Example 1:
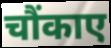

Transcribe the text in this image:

चौंकाए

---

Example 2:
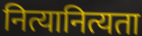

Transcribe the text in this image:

नित्यानित्यता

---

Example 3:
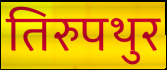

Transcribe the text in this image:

तिरुपथुर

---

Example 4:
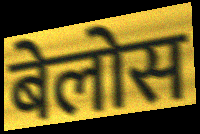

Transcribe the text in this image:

बेलोस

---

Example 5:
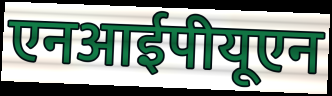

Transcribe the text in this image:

एनआईपीयूएन